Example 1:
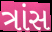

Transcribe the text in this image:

ત્રાંસ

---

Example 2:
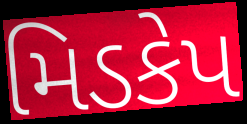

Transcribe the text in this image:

મિડકેપ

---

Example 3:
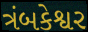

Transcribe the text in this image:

ત્રંબકેશ્વર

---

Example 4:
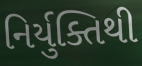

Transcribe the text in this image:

નિર્યુક્તિથી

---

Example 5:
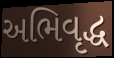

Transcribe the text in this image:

અભિવૃદ્ધ